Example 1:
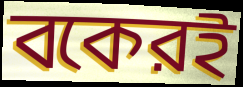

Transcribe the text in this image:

বকেরই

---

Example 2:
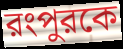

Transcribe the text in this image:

রংপুরকে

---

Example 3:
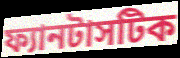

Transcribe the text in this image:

ফ্যানটাসটিক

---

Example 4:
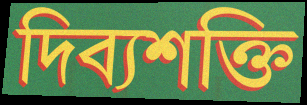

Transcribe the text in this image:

দিব্যশক্তি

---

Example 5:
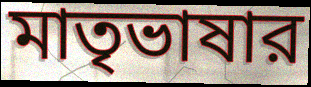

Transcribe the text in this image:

মাতৃভাষার